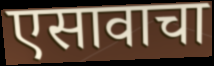
एसावाचा